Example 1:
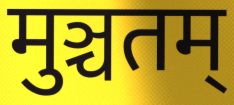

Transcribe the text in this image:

मुञ्चतम्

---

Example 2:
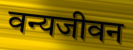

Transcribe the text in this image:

वन्यजीवन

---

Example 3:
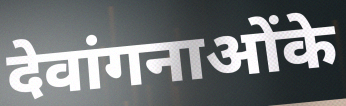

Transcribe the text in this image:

देवांगनाओंके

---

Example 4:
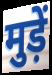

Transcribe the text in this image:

मुड़ें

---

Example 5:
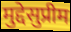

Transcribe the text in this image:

मुद्देसुप्रीम